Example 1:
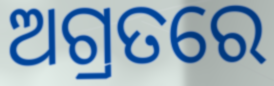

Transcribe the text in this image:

ଅଗ୍ରତରେ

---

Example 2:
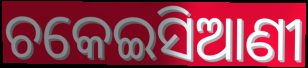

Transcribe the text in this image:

ଚକେଇସିଆଣୀ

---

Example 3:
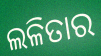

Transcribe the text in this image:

ଲଳିତାର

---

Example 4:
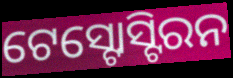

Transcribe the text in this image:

ଟେସ୍ଟୋସ୍ଟିରନ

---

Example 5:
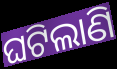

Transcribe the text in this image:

ଘଟିଲାଣି